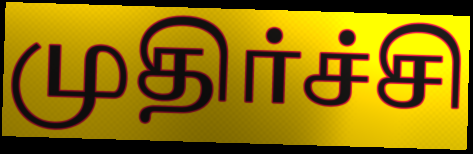
முதிர்ச்சி